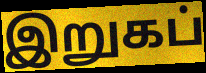
இறுகப்